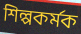
শিল্পকৰ্মক